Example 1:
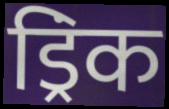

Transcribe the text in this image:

ड्रिंक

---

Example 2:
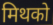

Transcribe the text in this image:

मिथको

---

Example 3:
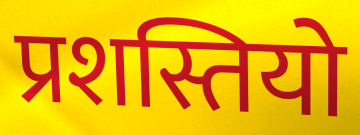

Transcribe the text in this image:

प्रशस्तियो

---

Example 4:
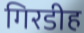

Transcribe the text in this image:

गिरडीह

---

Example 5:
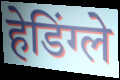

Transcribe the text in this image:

हेडिंग्‍ले